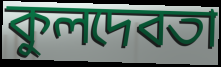
কুলদেবতা